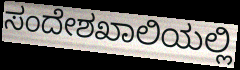
ಸಂದೇಶಖಾಲಿಯಲ್ಲಿ